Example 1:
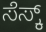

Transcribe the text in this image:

ಸೆಸ್ಕ್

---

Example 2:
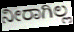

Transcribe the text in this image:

ನೀರಾಗಿಲ್ಲ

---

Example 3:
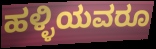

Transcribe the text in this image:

ಹಳ್ಳಿಯವರೂ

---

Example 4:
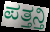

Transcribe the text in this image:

ಪತ್ತನ್ತಿ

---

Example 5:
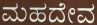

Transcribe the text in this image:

ಮಹದೇವ